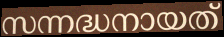
സന്നദ്ധനായത്